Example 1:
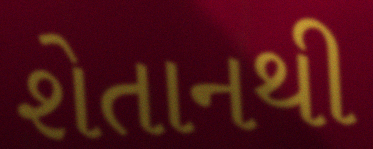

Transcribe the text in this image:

શેતાનથી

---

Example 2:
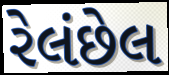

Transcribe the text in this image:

રેલંછેલ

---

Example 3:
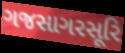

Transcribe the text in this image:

ગજસાગરસૂરિ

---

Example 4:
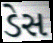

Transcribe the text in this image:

ડેસ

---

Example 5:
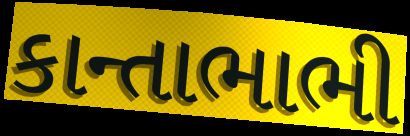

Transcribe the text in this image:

કાન્તાભાભી